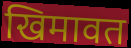
खिमावत